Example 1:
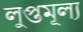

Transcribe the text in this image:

লুপ্তমূল্য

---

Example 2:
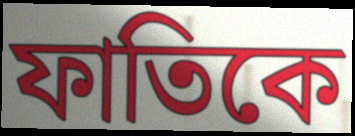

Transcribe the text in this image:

ফাতিকে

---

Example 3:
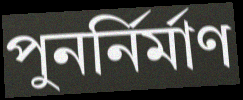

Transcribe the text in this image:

পুনর্নির্মাণ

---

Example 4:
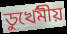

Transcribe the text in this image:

ডুর্খেমীয়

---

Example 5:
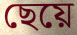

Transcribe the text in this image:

ছেয়ে